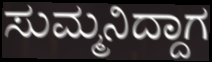
ಸುಮ್ಮನಿದ್ದಾಗ